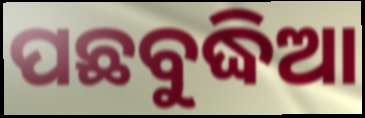
ପଛବୁଦ୍ଧିଆ